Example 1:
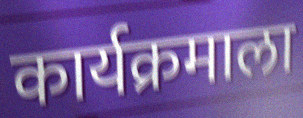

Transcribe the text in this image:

कार्यक्रमाला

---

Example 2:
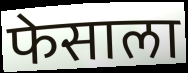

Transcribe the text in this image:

फेसाला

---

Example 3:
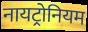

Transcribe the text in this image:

नायट्रोनियम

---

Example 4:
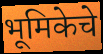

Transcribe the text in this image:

भूमिकेचे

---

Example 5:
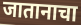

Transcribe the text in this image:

जातानाचा